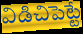
విడిచిపెట్టే